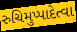
રુચિમુપ્પાદેત્વા